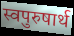
स्वपुरुषार्थ